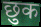
छुक